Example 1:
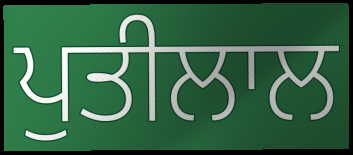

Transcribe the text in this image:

ਪੁਤੀਲਾਲ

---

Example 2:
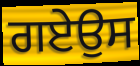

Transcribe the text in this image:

ਗਏਉਸ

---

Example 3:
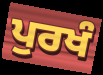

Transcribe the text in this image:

ਪੁਰਖੰ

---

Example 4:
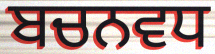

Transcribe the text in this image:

ਬਚਨਵਧ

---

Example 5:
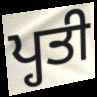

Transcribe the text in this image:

ਪ੍ਹਤੀ